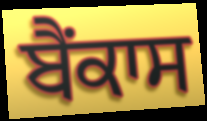
ਬੈਂਕਾਸ